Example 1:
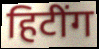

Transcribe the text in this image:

हिटींग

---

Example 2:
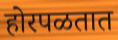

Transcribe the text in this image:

होरपळतात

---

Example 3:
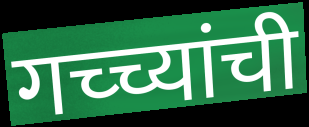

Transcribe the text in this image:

गच्च्यांची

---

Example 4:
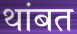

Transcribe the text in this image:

थांबत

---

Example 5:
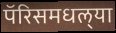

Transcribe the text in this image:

पॅरिसमधल्या